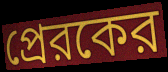
প্রেরকের